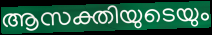
ആസക്തിയുടെയും